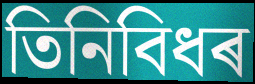
তিনিবিধৰ